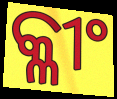
କ୍ଳୀଂ